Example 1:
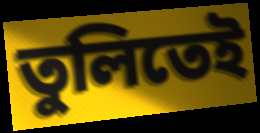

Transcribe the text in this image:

তুলিতেই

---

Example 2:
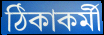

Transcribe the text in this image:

ঠিকাকর্মী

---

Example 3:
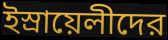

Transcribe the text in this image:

ইস্রায়েলীদের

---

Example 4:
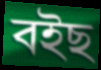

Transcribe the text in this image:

বইছ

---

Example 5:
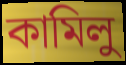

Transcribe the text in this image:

কামিলু